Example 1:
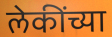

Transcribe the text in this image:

लेकींच्या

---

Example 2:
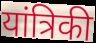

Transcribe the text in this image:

यांत्रिकी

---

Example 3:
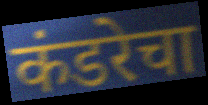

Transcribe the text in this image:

कंडरेचा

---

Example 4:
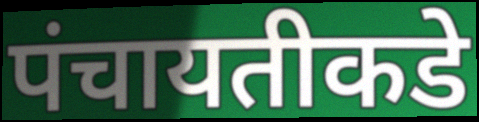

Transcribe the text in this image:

पंचायतीकडे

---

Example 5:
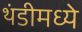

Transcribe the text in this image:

थंडीमध्ये